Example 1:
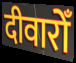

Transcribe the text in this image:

दीवारोँ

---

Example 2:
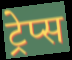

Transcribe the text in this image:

ट्रेप्स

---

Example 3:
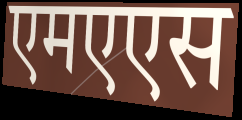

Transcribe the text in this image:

एमएएस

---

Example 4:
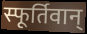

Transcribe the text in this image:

स्फूर्तिवान्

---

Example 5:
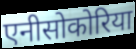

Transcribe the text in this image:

एनीसोकोरिया